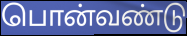
பொன்வண்டு